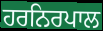
ਹਰਨਿਰਪਾਲ